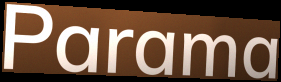
Parama